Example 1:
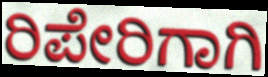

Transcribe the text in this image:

ರಿಪೇರಿಗಾಗಿ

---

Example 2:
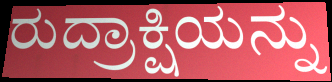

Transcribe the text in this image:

ರುದ್ರಾಕ್ಷಿಯನ್ನು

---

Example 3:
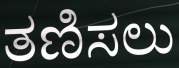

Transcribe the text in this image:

ತಣಿಸಲು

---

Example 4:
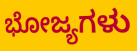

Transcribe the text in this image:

ಭೋಜ್ಯಗಳು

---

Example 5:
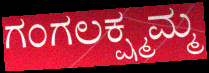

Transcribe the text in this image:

ಗಂಗಲಕ್ಷ್ಮಮ್ಮ